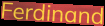
Ferdinand